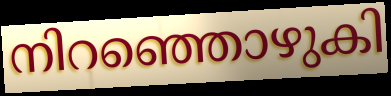
നിറഞ്ഞൊഴുകി